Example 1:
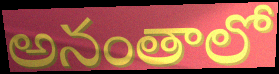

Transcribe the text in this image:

అనంతాలో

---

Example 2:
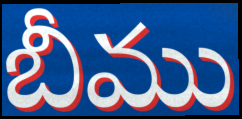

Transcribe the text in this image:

బీము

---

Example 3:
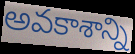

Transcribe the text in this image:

అవకాశాన్ని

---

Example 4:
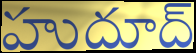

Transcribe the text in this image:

హుదూద్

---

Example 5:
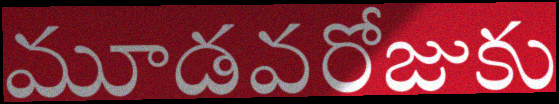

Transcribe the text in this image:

మూడవరోజుకు